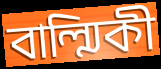
বাল্মিকী